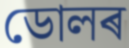
ডোলৰ